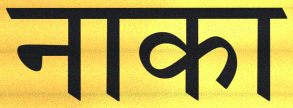
नाका